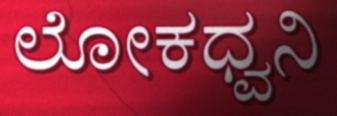
ಲೋಕಧ್ವನಿ